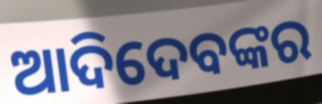
ଆଦିଦେବଙ୍କର